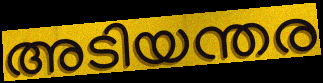
അടിയന്തര